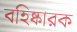
বহিষ্কারক